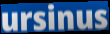
ursinus